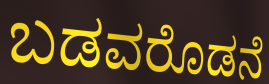
ಬಡವರೊಡನೆ